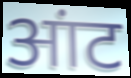
आंट